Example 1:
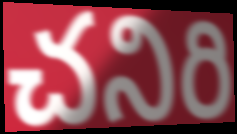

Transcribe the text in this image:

చనిరి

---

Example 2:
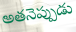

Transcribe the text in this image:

అతనెప్పుడు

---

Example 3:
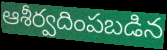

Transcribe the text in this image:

ఆశీర్వదింపబడిన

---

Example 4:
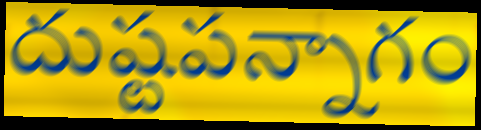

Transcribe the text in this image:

దుష్టపన్నాగం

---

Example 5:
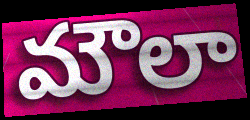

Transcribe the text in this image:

మౌలా